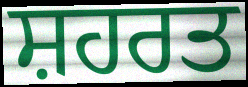
ਸ਼ਹਰਤ